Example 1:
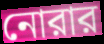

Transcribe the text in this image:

নোরার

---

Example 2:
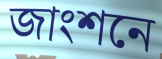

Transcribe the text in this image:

জাংশনে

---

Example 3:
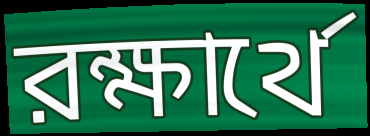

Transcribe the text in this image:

রক্ষার্থে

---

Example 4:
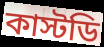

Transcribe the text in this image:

কাস্টডি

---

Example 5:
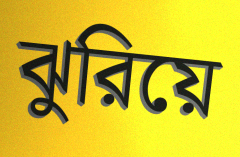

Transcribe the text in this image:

ঝুরিয়ে